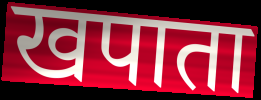
खपाता